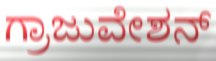
ಗ್ರಾಜುವೇಶನ್